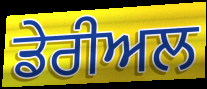
ਡੇਰੀਅਲ